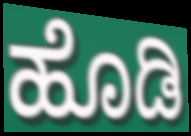
ಹೊಡಿ